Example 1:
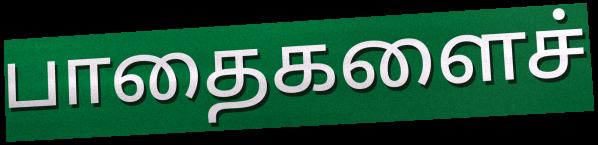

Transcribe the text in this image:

பாதைகளைச்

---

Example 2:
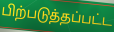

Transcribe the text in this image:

பிற்படுத்தப்பட்ட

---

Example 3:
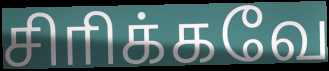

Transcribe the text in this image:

சிரிக்கவே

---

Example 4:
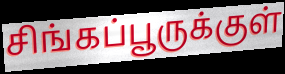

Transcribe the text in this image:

சிங்கப்பூருக்குள்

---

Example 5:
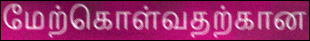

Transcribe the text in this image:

மேற்கொள்வதற்கான